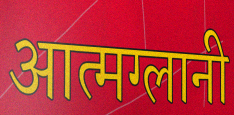
आत्मग्लानी